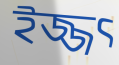
ইজ্জৎ